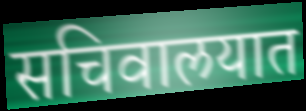
सचिवालयात